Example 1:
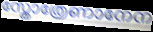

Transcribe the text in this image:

സ്തോത്രേണാനേന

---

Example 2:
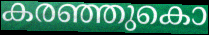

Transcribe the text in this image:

കരഞ്ഞുകൊ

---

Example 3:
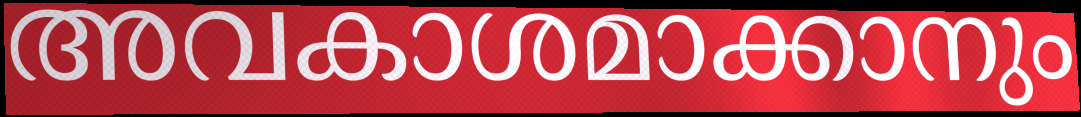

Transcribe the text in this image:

അവകാശമാക്കാനും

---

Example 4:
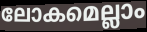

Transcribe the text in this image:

ലോകമെല്ലാം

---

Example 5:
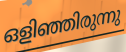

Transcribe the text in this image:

ഒളിഞ്ഞിരുന്നു